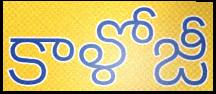
కాళోజీ